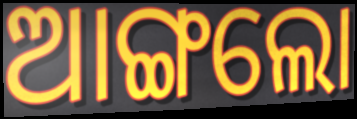
ଆଙ୍ଗଲୋ